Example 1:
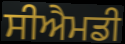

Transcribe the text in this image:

ਸੀਐਮਡੀ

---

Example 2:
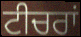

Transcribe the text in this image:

ਟੀਚਰਾਂ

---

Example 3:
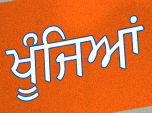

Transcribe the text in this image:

ਖੂੰਜਿਆਂ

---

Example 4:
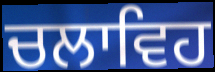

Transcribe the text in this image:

ਚਲਾਵਿਹ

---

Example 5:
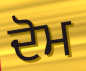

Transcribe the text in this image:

ਦੋਮ